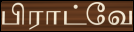
பிராட்வே